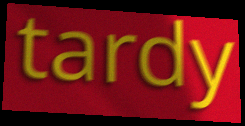
tardy